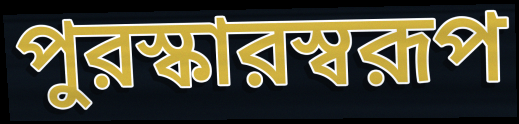
পুরস্কারস্বরূপ